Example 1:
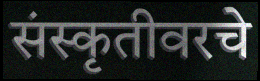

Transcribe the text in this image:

संस्कृतीवरचे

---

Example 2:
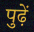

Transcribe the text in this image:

पुढ़ें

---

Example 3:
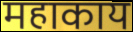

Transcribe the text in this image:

महाकाय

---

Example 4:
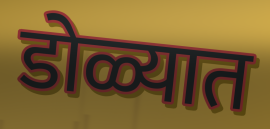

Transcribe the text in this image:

डोळ्यात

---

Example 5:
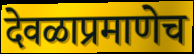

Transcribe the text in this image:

देवळाप्रमाणेच